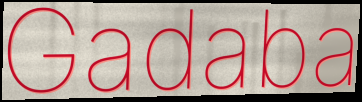
Gadaba